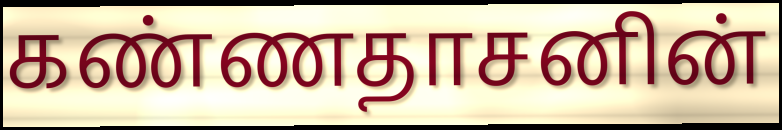
கண்ணதாசனின்